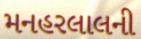
મનહરલાલની